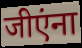
जीएंना